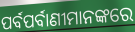
ପର୍ବପର୍ବାଣୀମାନଙ୍କରେ